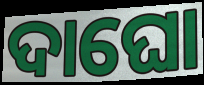
ଦାଘୋ